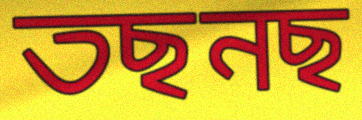
তছনছ